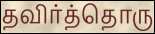
தவிர்த்தொரு